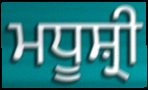
ਮਧੂਸ਼੍ਰੀ